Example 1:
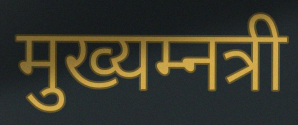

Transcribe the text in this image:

मुख्यम्नत्री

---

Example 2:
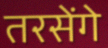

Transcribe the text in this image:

तरसेंगे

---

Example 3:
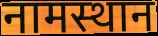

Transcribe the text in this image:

नामस्थान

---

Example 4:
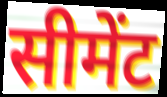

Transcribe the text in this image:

सीमेंट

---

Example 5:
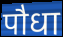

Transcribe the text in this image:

पौधा